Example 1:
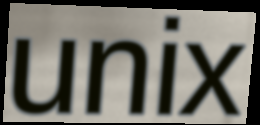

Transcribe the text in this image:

unix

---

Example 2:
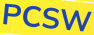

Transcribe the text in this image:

PCSW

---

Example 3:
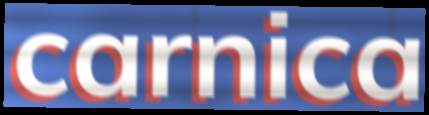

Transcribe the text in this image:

carnica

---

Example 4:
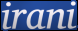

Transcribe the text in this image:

irani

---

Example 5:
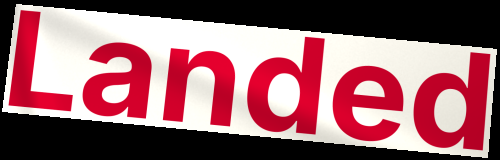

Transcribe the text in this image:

Landed